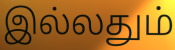
இல்லதும்